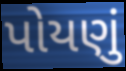
પોયણું